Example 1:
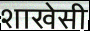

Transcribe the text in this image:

शाखेसी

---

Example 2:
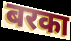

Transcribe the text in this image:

बरका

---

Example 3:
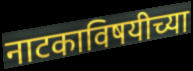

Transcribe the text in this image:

नाटकाविषयीच्या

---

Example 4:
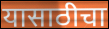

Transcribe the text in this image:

यासाठीचा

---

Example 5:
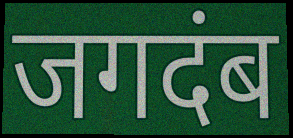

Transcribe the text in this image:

जगदंब